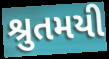
શ્રુતમયી